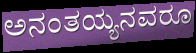
ಅನಂತಯ್ಯನವರೂ